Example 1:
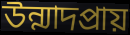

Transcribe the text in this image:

উন্মাদপ্রায়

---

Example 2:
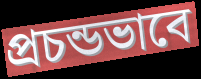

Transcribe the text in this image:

প্রচন্ডভাবে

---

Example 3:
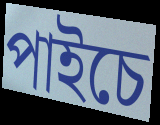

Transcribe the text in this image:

পাইচে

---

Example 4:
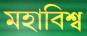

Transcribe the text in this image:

মহাবিশ্ব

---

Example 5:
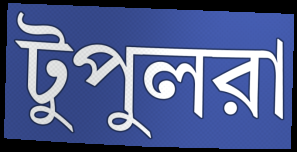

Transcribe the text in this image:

টুপুলরা